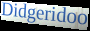
Didgeridoo